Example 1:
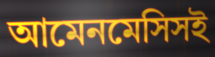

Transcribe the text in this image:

আমেনমেসিসই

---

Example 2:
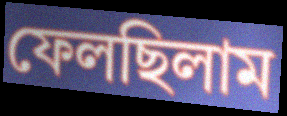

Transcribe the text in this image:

ফেলছিলাম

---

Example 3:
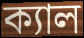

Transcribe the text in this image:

ক্যাল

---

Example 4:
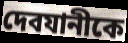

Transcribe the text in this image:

দেবযানীকে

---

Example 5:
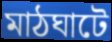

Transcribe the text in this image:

মাঠঘাটে